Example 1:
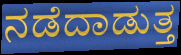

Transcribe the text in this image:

ನಡೆದಾಡುತ್ತ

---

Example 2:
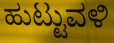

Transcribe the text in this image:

ಹುಟ್ಟುವಳಿ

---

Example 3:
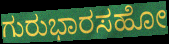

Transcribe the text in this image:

ಗುರುಭಾರಸಹೋ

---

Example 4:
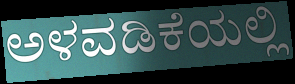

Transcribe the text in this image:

ಅಳವಡಿಕೆಯಲ್ಲಿ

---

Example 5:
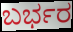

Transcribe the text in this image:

ಬರ್ಭರ